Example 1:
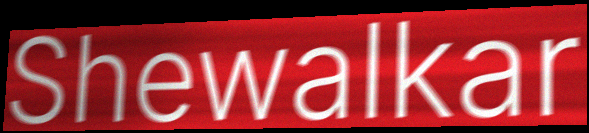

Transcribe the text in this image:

Shewalkar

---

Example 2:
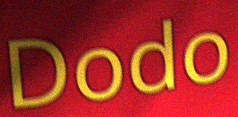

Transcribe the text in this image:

Dodo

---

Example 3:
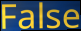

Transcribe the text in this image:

False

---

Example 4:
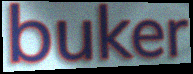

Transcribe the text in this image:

buker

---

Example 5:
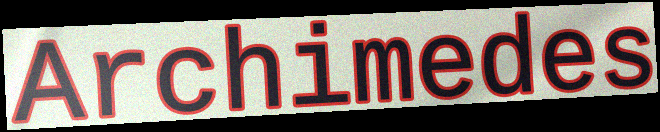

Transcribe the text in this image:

Archimedes